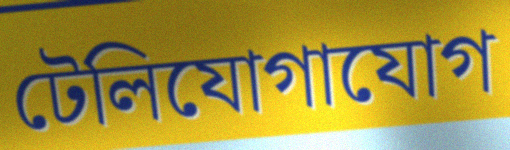
টেলিযোগাযোগ